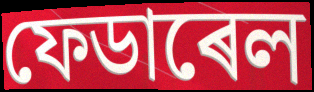
ফেডাৰেল